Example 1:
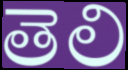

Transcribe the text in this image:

తెలి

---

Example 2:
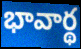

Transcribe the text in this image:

భావార్థ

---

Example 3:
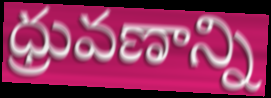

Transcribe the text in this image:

ధ్రువణాన్ని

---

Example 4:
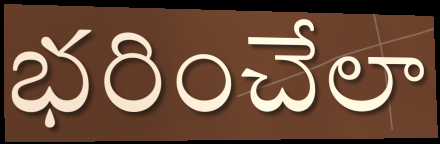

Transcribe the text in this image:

భరించేలా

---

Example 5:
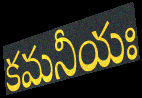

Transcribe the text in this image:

కమనీయః